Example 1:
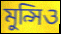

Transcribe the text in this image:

মুন্সিও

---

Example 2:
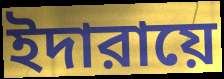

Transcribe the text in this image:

ইদারায়ে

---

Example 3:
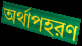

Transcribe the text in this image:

অর্থাপহরণ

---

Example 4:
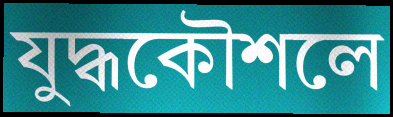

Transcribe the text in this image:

যুদ্ধকৌশলে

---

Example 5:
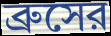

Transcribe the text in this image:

ব্রুসের